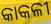
କାକଳୀ